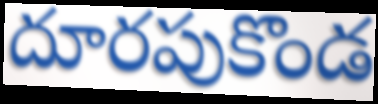
దూరపుకొండ